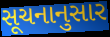
સૂચનાનુસાર